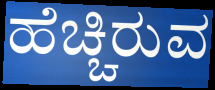
ಹೆಚ್ಚಿರುವ